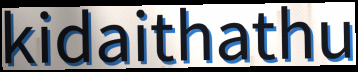
kidaithathu